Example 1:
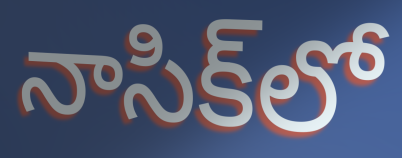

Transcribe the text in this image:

నాసిక్‌లో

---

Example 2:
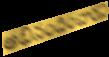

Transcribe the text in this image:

అభినందించారని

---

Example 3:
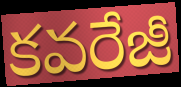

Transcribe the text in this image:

కవరేజీ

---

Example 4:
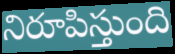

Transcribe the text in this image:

నిరూపిస్తుంది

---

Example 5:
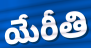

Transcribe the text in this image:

యేరీతి